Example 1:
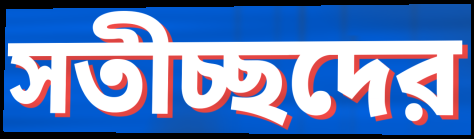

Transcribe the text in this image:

সতীচ্ছদের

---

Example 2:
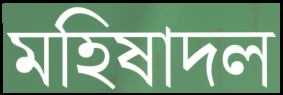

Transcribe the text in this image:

মহিষাদল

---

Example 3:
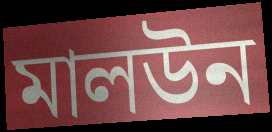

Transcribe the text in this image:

মালউন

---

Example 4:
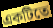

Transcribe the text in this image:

একটিতে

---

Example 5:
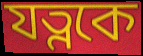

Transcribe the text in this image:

যত্নকে